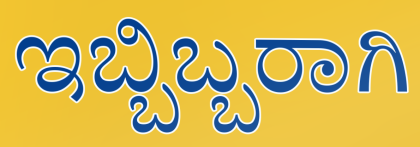
ಇಬ್ಬಿಬ್ಬರಾಗಿ